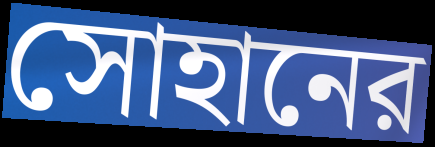
সোহানের